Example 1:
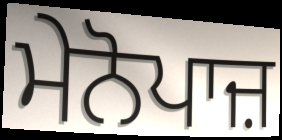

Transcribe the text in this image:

ਮੇਨੋਪਾਜ਼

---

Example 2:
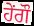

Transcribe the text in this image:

ਹੇਂਗੌ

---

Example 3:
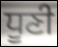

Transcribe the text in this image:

ਧੂਣੀ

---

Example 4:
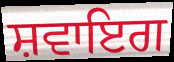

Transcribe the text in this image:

ਸ਼ਵਾਇਗ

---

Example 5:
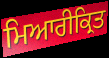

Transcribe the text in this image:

ਮਿਆਰੀਕ੍ਰਿਤ